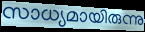
സാധ്യമായിരുന്നു